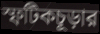
স্ফটিকচূড়ার